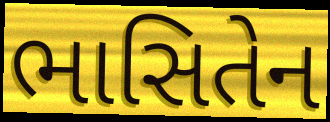
ભાસિતેન